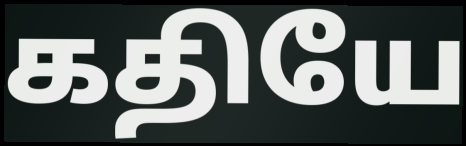
கதியே